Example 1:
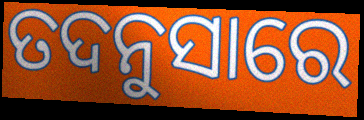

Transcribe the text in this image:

ତଦନୁସାରେ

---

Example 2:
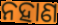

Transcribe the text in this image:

ନହାଣ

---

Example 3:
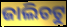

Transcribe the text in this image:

ଜାଲିଚଟୁ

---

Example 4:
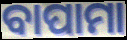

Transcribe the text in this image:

ବାପାମା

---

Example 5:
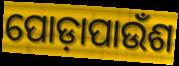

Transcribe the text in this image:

ପୋଡ଼ାପାଉଁଶ